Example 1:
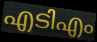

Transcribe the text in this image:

എടിഎം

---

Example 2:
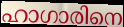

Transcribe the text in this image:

ഹാഗാരിനെ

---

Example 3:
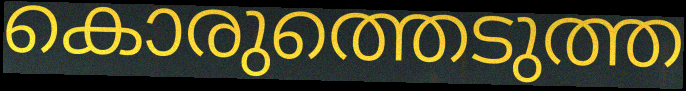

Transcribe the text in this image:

കൊരുത്തെടുത്ത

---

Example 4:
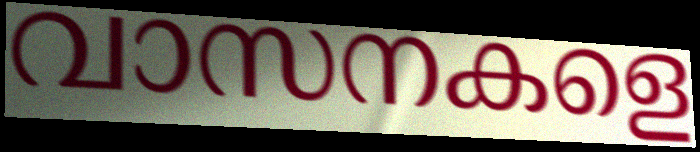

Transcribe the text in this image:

വാസനകളെ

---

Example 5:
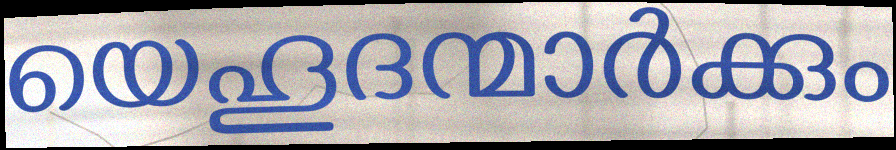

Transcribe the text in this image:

യെഹൂദന്മാർക്കും